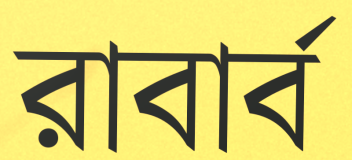
রাবার্ব